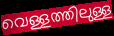
വെള്ളത്തിലുള്ള